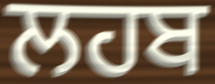
ਲਹਬ